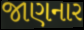
જાણનાર